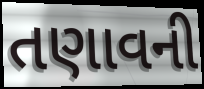
તણાવની